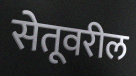
सेतूवरील